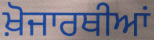
ਖ਼ੋਜਾਰਥੀਆਂ